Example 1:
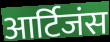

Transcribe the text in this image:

आर्टिजंस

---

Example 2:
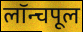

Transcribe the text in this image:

लॉन्चपूल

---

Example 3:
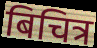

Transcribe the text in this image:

बिचित्र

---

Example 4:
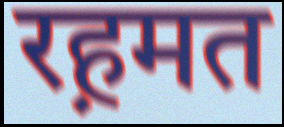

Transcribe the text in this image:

रह़मत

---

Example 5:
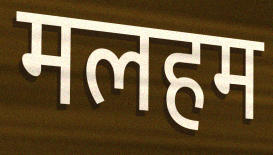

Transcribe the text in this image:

मलहम